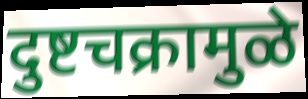
दुष्टचक्रामुळे